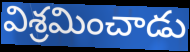
విశ్రమించాడు